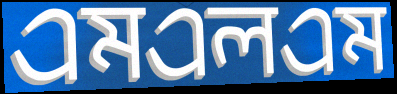
এমএলএম